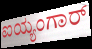
ಐಯ್ಯಂಗಾರ್